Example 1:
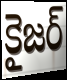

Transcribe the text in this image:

కైజర్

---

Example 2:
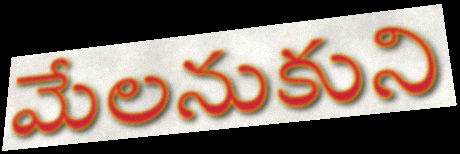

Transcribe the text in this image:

మేలనుకుని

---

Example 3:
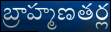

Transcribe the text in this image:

బ్రాహ్మణతర్ల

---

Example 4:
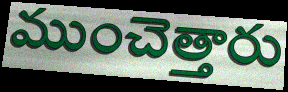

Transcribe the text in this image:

ముంచెత్తారు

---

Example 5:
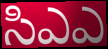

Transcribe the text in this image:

సిఎఎ